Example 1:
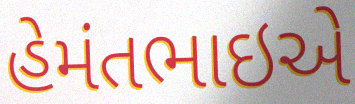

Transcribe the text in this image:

હેમંતભાઇએ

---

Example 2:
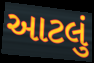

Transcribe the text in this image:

આટલું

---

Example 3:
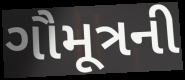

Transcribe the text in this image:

ગૌમૂત્રની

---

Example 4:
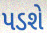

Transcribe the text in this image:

પડશે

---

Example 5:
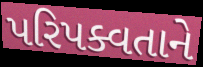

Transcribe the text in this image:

પરિપક્વતાને